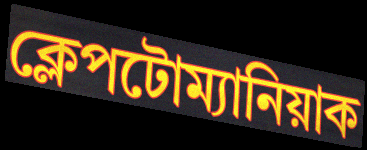
ক্লেপটোম্যানিয়াক